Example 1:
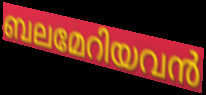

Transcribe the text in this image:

ബലമേറിയവൻ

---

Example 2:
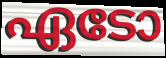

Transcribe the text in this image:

ഏടോ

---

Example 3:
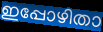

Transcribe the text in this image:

ഇപ്പോഴിതാ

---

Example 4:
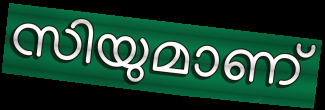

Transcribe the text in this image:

സിയുമാണ്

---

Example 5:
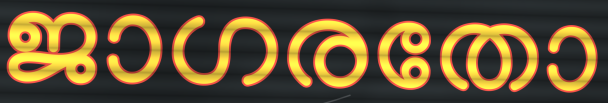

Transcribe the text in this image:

ജാഗരതോ